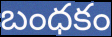
బంధకం